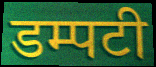
डम्पटी